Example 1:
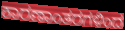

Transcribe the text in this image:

ಕಾರಣಾಂತರಗಳಿಂದ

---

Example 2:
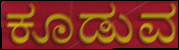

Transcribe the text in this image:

ಕೂಡುವ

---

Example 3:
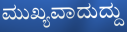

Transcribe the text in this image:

ಮುಖ್ಯವಾದುದ್ದು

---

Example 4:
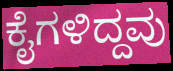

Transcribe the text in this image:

ಕೈಗಳಿದ್ದವು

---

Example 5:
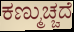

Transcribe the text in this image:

ಕಣ್ಮುಚ್ಚದೆ